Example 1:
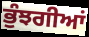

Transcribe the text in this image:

ਭੁੰਝਗੀਆਂ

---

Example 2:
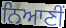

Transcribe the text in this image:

ਨਿਆਣੀਂ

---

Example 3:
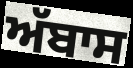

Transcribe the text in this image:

ਅੱਬਾਸ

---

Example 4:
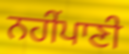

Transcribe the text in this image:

ਨਹੀਂਪਾਣੀ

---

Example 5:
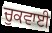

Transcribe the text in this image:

ਚੁਕਵਾਈ